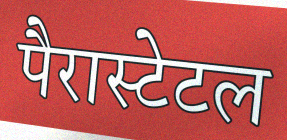
पैरास्टेटल